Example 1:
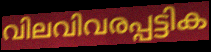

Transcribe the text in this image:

വിലവിവരപ്പട്ടിക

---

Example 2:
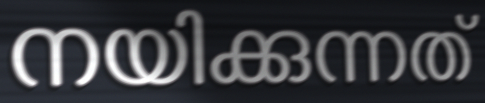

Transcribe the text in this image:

നയിക്കുന്നത്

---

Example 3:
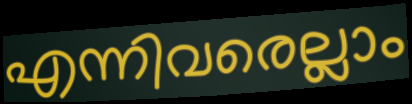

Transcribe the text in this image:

എന്നിവരെല്ലാം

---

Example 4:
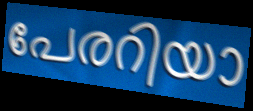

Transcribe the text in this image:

പേരറിയാ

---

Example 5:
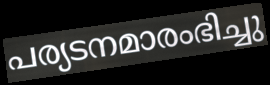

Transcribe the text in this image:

പര്യടനമാരംഭിച്ചു